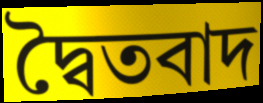
দ্বৈতবাদ